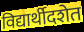
विद्यार्थीदशेत